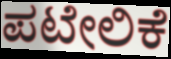
ಪಟೇಲಿಕೆ